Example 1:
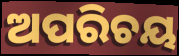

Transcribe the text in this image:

ଅପରିଚୟ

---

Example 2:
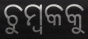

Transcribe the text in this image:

ଚୁମ୍ୱକକୁ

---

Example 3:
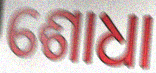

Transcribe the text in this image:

ଶୋଧା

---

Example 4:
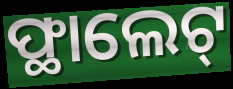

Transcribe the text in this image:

ଫ୍ଥାଲେଟ୍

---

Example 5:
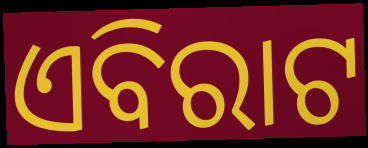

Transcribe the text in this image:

ଏବିରାଟ